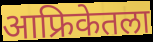
आफ्रिकेतला